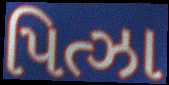
પિત્ઝા